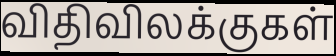
விதிவிலக்குகள்